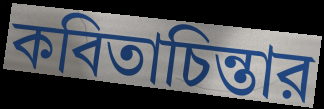
কবিতাচিন্তার